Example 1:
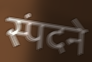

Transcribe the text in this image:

स्पंदने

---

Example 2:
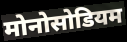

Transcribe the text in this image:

मोनोसोडियम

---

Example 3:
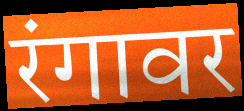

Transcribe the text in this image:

रंगावर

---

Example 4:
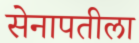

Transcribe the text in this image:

सेनापतीला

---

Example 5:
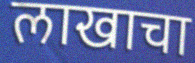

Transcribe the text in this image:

लाखाचा